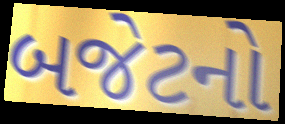
બજેટનો